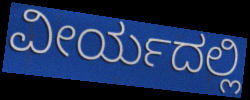
ವೀರ್ಯದಲ್ಲಿ